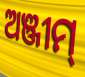
ଅଞ୍ଜୀମ୍